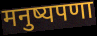
मनुष्यपणा